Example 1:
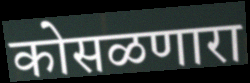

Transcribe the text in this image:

कोसळणारा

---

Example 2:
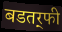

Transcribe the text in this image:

बडतर्फी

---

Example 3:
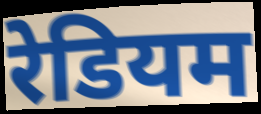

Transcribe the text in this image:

रेडियम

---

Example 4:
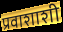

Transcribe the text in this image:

प्रवाशाशी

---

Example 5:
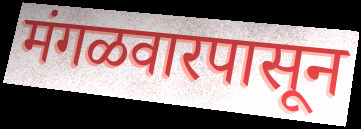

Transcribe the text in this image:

मंगळवारपासून